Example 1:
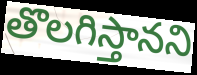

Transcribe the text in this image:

తొలగిస్తానని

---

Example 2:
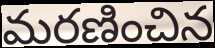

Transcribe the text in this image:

మరణించిన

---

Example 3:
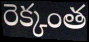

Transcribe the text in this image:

రెక్కంత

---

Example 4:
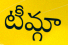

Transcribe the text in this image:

టీమ్గా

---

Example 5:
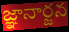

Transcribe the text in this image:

జ్ఞానార్జన